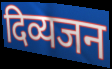
दिव्यजन